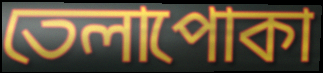
তেলাপোকা